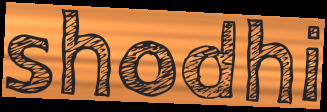
shodhi